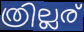
ത്രില്ലര്